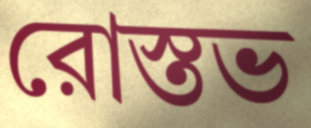
রোস্তভ